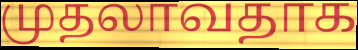
முதலாவதாக